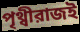
পৃথ্বীরাজই